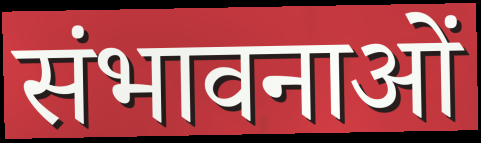
संभावनाओं